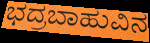
ಭದ್ರಬಾಹುವಿನ